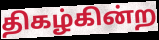
திகழ்கின்ற